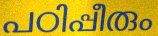
പഠിപ്പീരും